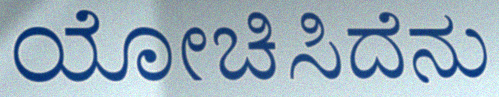
ಯೋಚಿಸಿದೆನು